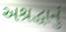
અશ્રદ્ધાનું